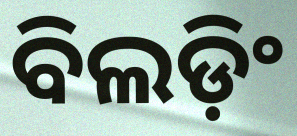
ବିଲଡ଼ିଂ